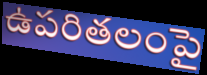
ఉపరితలంపై